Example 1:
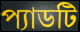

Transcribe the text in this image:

প্যাডটি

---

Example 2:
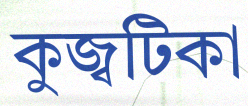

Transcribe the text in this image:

কুজ্বটিকা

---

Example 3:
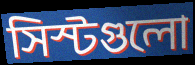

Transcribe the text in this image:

সিস্টগুলো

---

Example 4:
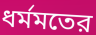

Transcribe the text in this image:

ধর্মমতের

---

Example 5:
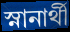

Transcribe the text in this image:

স্নানার্থী